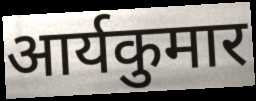
आर्यकुमार